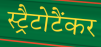
स्ट्रैटोटैंकर